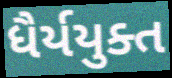
ધૈર્યયુક્ત